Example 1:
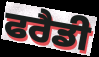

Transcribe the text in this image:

ਫਰੈਡੀ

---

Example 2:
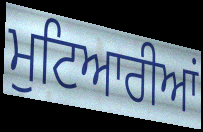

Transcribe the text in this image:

ਮੁਟਿਆਰੀਆਂ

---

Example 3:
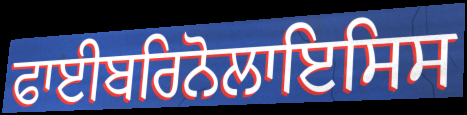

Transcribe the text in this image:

ਫਾਈਬਰਿਨੋਲਾਇਸਿਸ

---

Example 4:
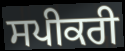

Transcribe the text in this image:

ਸਪੀਕਰੀ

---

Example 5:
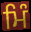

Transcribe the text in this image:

ਮਿੰ